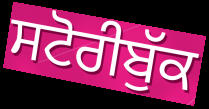
ਸਟੋਰੀਬੁੱਕ